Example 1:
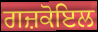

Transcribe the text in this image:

ਗਜ਼ਕੋਇਲ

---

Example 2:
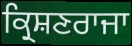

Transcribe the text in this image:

ਕ੍ਰਿਸ਼ਣਰਾਜਾ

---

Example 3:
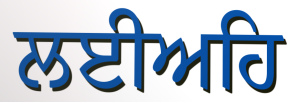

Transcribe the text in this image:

ਲਈਅਹਿ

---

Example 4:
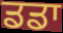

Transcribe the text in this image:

ਡਡਾ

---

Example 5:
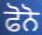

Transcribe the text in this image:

ਫੋਨੋ